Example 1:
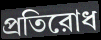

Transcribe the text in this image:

প্রতিরোধ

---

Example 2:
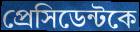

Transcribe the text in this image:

প্রেসিডেন্টকে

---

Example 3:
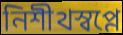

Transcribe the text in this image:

নিশীথস্বপ্নে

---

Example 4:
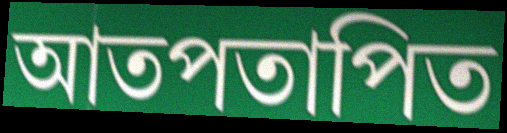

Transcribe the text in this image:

আতপতাপিত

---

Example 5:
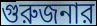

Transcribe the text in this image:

গুরুজনার